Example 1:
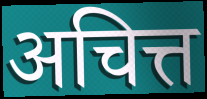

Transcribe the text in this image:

अचित्त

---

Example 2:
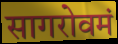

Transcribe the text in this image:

सागरोवमं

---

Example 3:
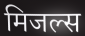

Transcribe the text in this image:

मिजल्स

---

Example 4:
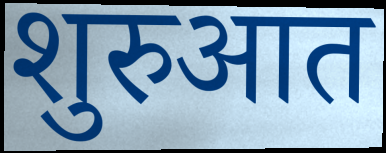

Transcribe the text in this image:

शुरुआत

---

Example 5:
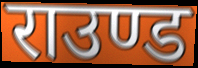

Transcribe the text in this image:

राउण्ड